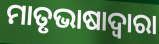
ମାତୃଭାଷାଦ୍ୱାରା